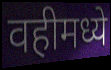
वहीमध्ये